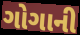
ગોગાની